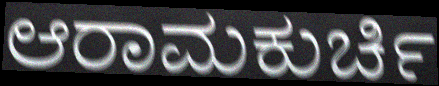
ಆರಾಮಕುರ್ಚಿ